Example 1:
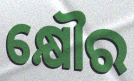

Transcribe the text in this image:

କ୍ଷୌର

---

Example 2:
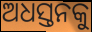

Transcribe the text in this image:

ଅଧସ୍ତନକୁ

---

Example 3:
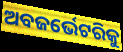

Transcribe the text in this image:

ଅବଜର୍ଭେଟରିକୁ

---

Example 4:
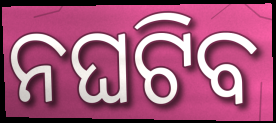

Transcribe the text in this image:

ନଘଟିବ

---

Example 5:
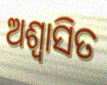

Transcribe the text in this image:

ଅଶ୍ୱାସିତ